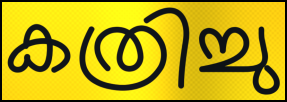
കത്രിച്ചു